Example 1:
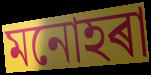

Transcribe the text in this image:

মনোহৰা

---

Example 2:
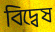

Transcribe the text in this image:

বিদ্বেষ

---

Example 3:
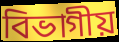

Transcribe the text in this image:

বিভাগীয়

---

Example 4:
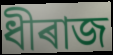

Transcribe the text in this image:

ধীৰাজ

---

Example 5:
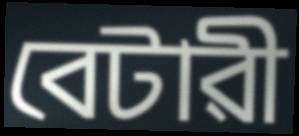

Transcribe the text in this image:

বেটাৱী